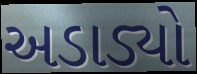
અડાડ્યો